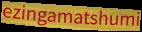
ezingamatshumi